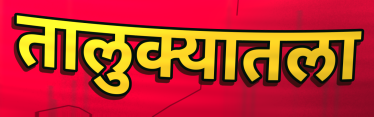
तालुक्यातला